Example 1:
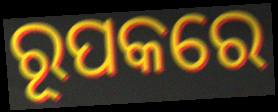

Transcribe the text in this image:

ରୂପକରେ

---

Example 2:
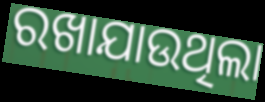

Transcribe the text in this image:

ରଖାଯାଉଥିଲା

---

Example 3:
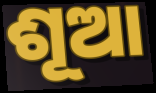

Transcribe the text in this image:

ଶୂଆ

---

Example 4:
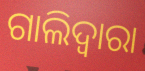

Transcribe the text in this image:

ଗାଲିଦ୍ଵାରା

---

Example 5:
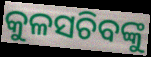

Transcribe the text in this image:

କୁଳସଚିବଙ୍କୁ